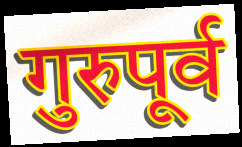
गुरुपूर्व